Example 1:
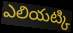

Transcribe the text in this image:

ఎలియట్కి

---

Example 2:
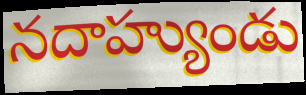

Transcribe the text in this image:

నదాహ్యుండు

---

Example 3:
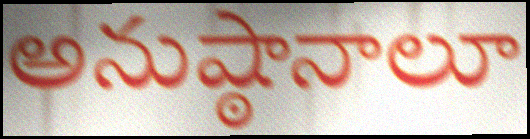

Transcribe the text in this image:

అనుష్ఠానాలూ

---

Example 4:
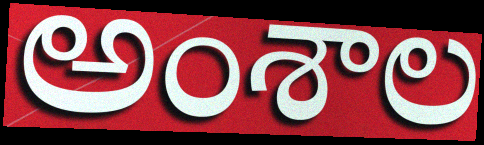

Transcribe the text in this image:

అంశాల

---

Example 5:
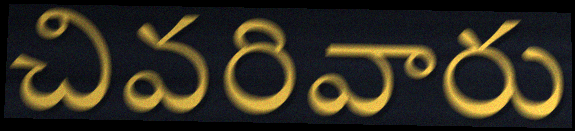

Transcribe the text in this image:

చివరివారు